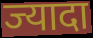
ज्‍यादा